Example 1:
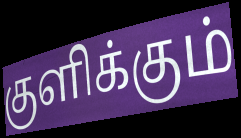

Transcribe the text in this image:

குளிக்கும்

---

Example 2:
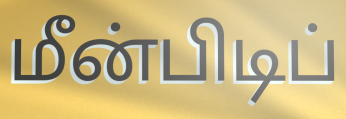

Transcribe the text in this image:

மீன்பிடிப்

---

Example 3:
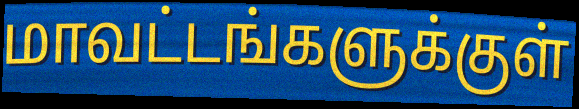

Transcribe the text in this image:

மாவட்டங்களுக்குள்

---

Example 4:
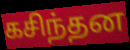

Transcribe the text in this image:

கசிந்தன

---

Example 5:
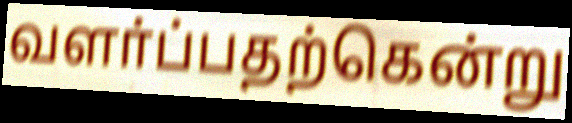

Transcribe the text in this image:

வளர்ப்பதற்கென்று